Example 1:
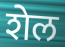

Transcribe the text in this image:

शेल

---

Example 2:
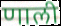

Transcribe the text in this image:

णाली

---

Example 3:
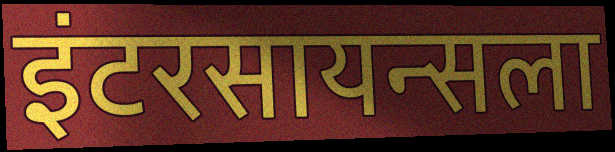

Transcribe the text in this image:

इंटरसायन्सला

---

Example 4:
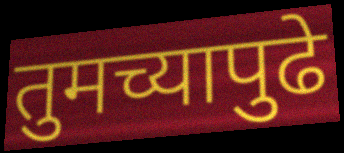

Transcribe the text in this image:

तुमच्यापुढे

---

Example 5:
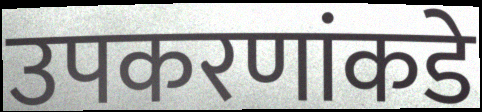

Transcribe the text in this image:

उपकरणांकडे